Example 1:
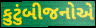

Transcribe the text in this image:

કુટુંબીજનોએ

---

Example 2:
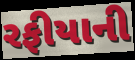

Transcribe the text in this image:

રફીયાની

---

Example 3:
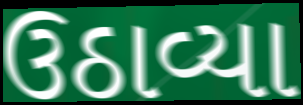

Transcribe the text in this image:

ઉઠાવ્યા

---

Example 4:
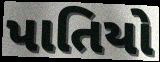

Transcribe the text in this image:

પાતિયો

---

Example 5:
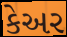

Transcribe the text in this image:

કેઅર